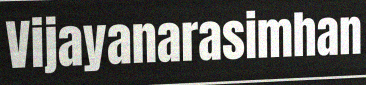
Vijayanarasimhan